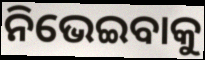
ନିଭେଇବାକୁ